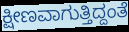
ಕ್ಷೀಣವಾಗುತ್ತಿದ್ದಂತೆ